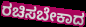
ರಚಿಸಬೇಕಾದ